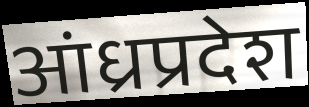
आंध्रप्रदेश